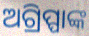
ଅଗ୍ରିପ୍ପାଙ୍କ